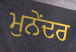
ਮੁਨੇਂਦਰ